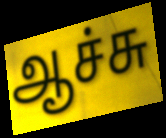
ஆச்சு